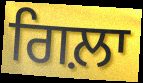
ਗਿਲ਼ਾ